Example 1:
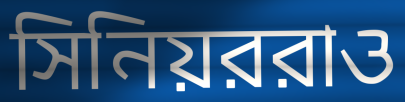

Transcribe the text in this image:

সিনিয়ররাও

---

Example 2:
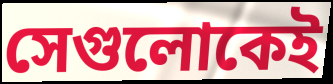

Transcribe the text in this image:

সেগুলোকেই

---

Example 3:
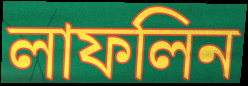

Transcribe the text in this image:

লাফলিন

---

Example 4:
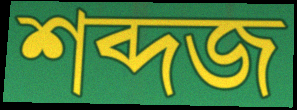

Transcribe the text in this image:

শব্দজ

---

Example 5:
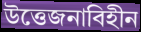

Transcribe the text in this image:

উত্তেজনাবিহীন